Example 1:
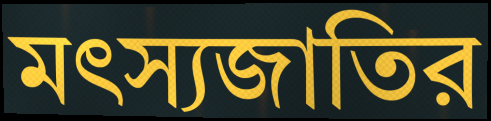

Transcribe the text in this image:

মৎস্যজাতির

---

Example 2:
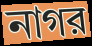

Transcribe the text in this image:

নাগর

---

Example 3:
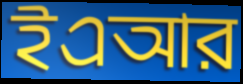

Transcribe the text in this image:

ইএআর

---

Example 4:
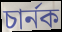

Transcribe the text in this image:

চার্নক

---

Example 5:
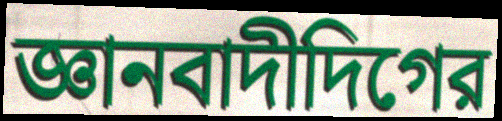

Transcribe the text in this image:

জ্ঞানবাদীদিগের